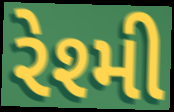
રેશ્મી